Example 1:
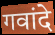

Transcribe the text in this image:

गवांदे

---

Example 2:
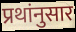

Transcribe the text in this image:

प्रथांनुसार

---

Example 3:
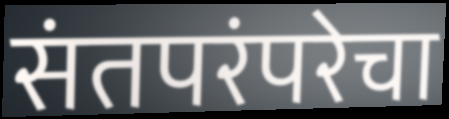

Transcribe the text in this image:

संतपरंपरेचा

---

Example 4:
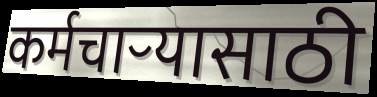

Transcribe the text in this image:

कर्मचाऱ्यासाठी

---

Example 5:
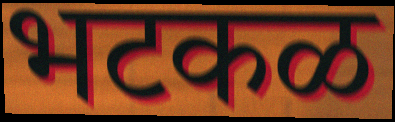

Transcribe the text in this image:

भटकळ